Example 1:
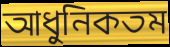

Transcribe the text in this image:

আধুনিকতম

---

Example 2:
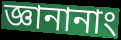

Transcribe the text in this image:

জ্ঞানানাং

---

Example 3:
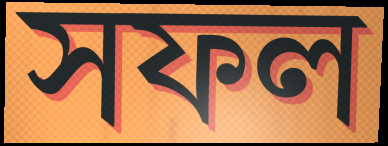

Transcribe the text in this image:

সফল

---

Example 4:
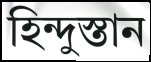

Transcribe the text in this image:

হিন্দুস্তান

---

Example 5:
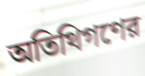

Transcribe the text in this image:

অতিথিগণের